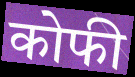
कोफी